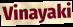
Vinayaki